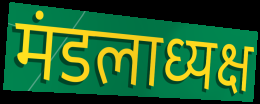
मंडलाध्यक्ष